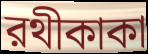
রথীকাকা